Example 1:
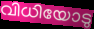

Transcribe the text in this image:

വിധിയോടു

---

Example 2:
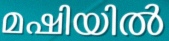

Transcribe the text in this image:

മഷിയിൽ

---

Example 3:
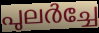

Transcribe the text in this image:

പുലർച്ചേ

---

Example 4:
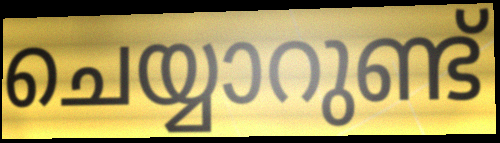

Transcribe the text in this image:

ചെയ്യാറുണ്ട്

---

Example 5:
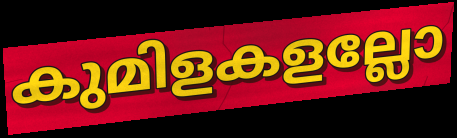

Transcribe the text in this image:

കുമിളകളല്ലോ